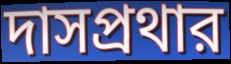
দাসপ্রথার